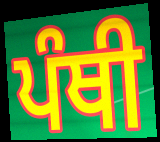
ਪੰਥੀ